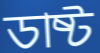
ডাষ্ট